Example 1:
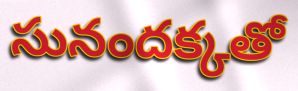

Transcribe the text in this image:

సునందక్కతో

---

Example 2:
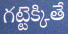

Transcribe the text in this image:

గట్టెక్కితే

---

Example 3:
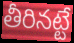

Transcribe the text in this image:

తీరినట్టే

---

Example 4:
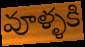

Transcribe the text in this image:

వూళ్ళకి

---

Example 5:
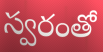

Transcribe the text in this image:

స్వరంతో